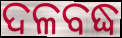
ଦଳବଦ୍ଧ